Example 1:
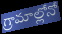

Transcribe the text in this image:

గ్రామాల్లోనో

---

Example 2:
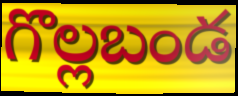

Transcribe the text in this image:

గొల్లబండ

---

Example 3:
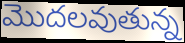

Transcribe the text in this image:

మొదలవుతున్న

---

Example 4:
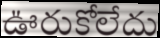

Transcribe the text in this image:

ఊరుకోలేదు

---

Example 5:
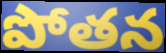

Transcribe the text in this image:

పోతన